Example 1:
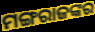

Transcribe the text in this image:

ମଙ୍ଗରାଜଙ୍କର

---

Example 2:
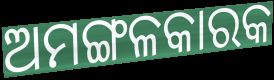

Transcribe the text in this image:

ଅମଙ୍ଗଳକାରକ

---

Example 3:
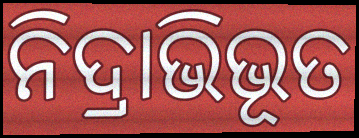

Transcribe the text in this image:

ନିଦ୍ରାଭିଭୂତ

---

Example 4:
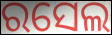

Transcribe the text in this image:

ରସେଲ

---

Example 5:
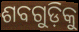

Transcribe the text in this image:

ଶବଗୁଡ଼ିକୁ